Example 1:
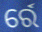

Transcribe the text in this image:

ର୍ରେ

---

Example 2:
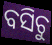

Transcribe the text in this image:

ବସିଚୁ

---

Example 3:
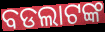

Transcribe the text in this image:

ବଡଲାଟଙ୍କ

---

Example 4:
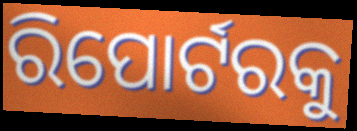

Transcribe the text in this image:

ରିପୋର୍ଟରକୁ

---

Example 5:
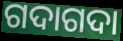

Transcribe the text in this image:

ଗଦାଗଦା